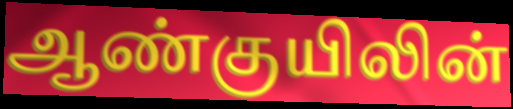
ஆண்குயிலின்